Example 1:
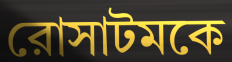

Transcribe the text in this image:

রোসাটমকে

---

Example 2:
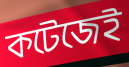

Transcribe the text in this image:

কটেজেই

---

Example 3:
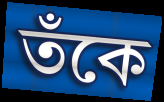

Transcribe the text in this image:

তঁকে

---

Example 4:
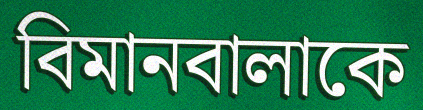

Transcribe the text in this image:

বিমানবালাকে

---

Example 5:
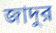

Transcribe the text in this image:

জাদুর